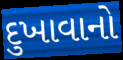
દુખાવાનો